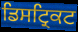
ਡਿਸਟ੍ਰਿਕਟ